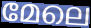
മേലെ